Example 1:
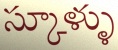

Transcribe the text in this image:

స్కూళ్ళు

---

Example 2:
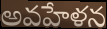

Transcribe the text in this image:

అవహేళన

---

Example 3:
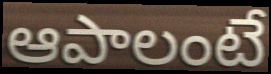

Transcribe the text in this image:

ఆపాలంటే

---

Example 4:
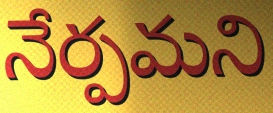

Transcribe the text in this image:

నేర్పమని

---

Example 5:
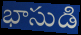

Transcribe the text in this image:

భాసుడి